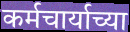
कर्मचार्याच्या